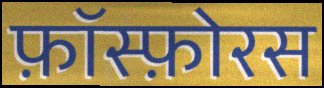
फ़ॉस्फ़ोरस